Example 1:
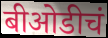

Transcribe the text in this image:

बीओडीचं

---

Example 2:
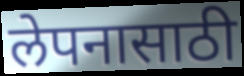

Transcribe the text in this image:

लेपनासाठी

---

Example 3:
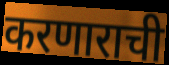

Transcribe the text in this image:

करणाराची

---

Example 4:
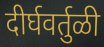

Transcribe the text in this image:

दीर्घवर्तुळी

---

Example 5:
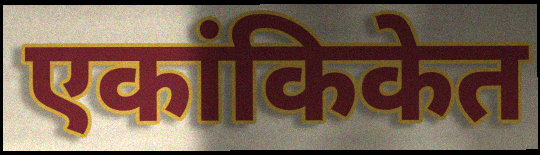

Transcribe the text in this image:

एकांकिकेत